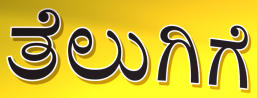
ತೆಲುಗಿಗೆ